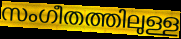
സംഗീതത്തിലുള്ള